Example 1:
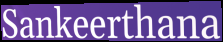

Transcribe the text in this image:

Sankeerthana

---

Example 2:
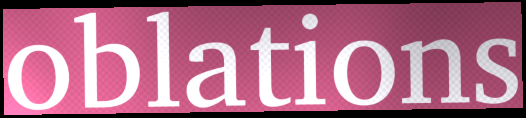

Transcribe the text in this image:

oblations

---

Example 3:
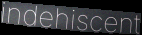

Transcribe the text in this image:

indehiscent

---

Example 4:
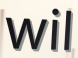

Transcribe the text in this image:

wil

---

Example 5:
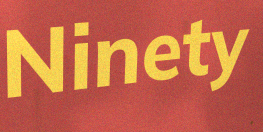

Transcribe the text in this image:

Ninety